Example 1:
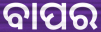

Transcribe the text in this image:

ବାପର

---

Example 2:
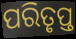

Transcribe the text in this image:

ପରିତୃପ୍ତ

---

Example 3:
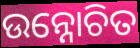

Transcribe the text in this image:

ଉନ୍ନୋଚିତ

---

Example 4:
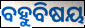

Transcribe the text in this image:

ବହୁବିଷୟ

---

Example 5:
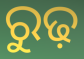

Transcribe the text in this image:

ରୁଢ଼